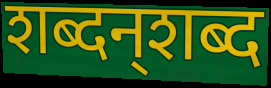
शब्दन्‌शब्द